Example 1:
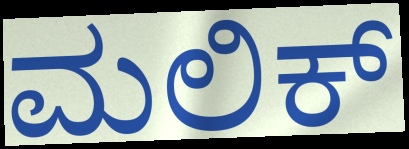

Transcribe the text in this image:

ಮಲಿಕ್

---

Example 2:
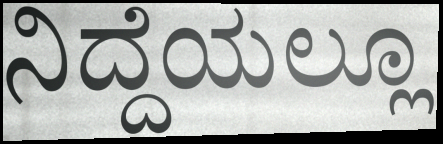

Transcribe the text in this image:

ನಿದ್ದೆಯಲ್ಲೂ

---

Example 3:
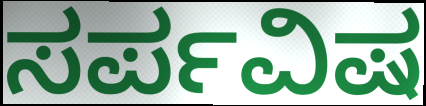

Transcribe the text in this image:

ಸರ್ಪವಿಷ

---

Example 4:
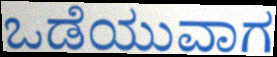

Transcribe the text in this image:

ಒಡೆಯುವಾಗ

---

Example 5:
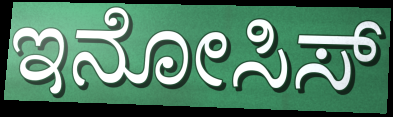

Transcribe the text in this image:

ಇನೋಸಿಸ್